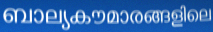
ബാല്യകൗമാരങ്ങളിലെ